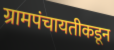
ग्रामपंचायतीकडून